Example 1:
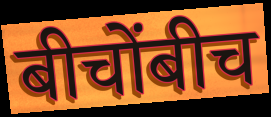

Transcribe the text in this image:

बीचोंबीच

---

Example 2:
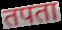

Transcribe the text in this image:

तपता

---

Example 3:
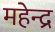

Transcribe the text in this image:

महेन्‍द्र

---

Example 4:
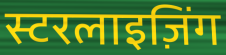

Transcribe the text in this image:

स्टरलाइज़िंग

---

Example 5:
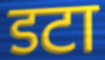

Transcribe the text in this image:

डटा